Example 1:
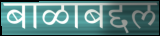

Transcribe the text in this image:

बाळाबद्दल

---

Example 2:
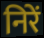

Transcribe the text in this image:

निरें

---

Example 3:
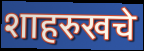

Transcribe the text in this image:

शाहरुखचे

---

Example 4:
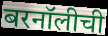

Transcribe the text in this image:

बरनॉलीची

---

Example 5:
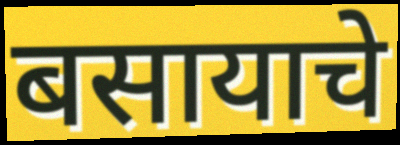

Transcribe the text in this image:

बसायाचे